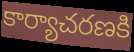
కార్యాచరణకి